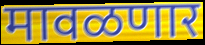
मावळणार